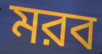
মরব